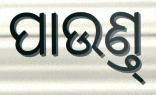
ପାଉଣ୍ତ୍